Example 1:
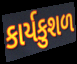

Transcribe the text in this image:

કાર્યકુશળ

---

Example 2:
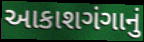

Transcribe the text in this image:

આકાશગંગાનું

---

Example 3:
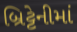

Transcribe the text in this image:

બ્રિટ્ટેનીમાં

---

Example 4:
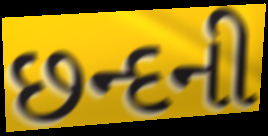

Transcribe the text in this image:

છન્દની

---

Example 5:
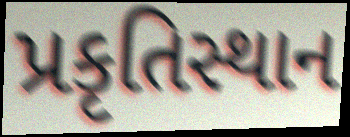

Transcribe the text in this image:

પ્રકૃતિસ્થાન